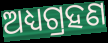
ଅଧ୍ୟଗ୍ରହଣ